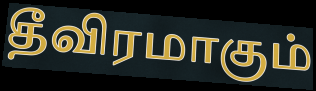
தீவிரமாகும்